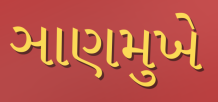
ઞાણમુખે